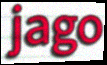
jago